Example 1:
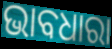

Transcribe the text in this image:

ଭାବଧାରା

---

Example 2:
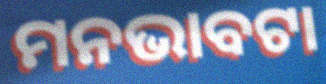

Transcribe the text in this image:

ମନଭାବଟା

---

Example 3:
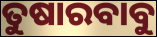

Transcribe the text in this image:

ତୁଷାରବାବୁ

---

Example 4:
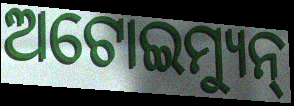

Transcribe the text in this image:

ଅଟୋଇମ୍ୟୁନ୍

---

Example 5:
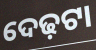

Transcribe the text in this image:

ଦେଢ଼ଟା